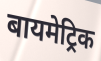
बायमेट्रिक